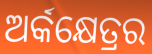
ଅର୍କକ୍ଷେତ୍ରର